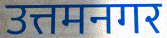
उत्तमनगर